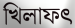
খিলাফৎ